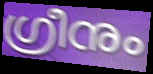
ഗ്രീനും